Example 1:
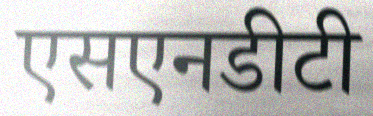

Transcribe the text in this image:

एसएनडीटी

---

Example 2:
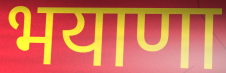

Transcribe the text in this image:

भयाणा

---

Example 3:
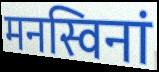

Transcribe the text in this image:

मनस्विनां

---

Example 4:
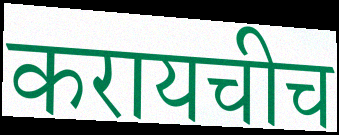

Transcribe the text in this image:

करायचीच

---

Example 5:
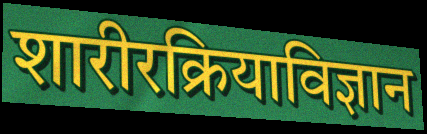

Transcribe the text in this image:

शारीरक्रियाविज्ञान